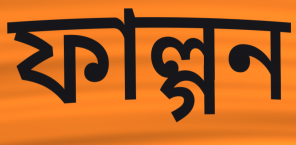
ফাল্গন